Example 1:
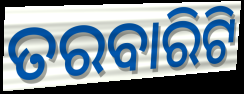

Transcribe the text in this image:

ତରବାରିଟି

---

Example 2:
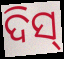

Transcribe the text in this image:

ଦିସ୍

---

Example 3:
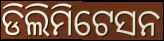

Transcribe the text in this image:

ଡିଲିମିଟେସନ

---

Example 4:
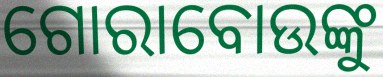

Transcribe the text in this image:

ଗୋରାବୋଉଙ୍କୁ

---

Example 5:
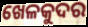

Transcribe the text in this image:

ଖେଳକୁଦର